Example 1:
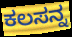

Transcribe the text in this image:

ಕಲಸನ್ನ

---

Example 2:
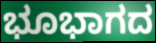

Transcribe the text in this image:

ಭೂಭಾಗದ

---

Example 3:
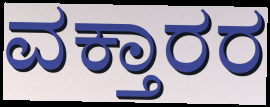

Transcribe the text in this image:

ವಕ್ತಾರರ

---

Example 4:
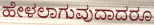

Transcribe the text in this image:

ಹೇಳಲಾಗುವುದಾದರೂ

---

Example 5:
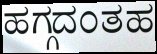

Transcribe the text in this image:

ಹಗ್ಗದಂತಹ